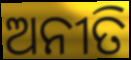
ଅନୀତି